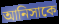
আনিসাকে